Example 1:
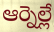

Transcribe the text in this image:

ఆర్నెల్లే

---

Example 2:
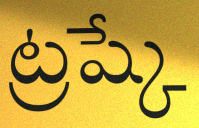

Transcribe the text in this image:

ట్రష్కే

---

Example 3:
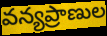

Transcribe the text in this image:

వన్యప్రాణుల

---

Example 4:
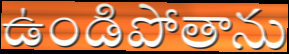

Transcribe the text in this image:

ఉండిపోతాను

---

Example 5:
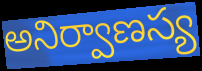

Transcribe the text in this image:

అనిర్వాణస్య